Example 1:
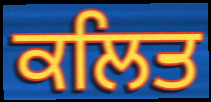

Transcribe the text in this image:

ਕਲਿਤ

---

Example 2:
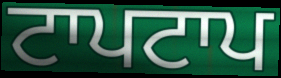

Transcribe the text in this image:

ਟਾਪਟਾਪ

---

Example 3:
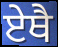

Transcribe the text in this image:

ਏਥੈ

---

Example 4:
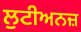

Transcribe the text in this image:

ਲੁਟੀਅਨਜ਼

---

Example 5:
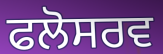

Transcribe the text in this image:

ਫਲੋਸਰਵ